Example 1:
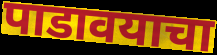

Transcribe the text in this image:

पाडावयाचा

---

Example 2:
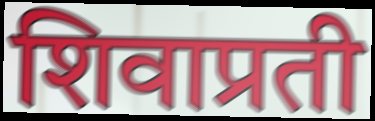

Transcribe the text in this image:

शिवाप्रती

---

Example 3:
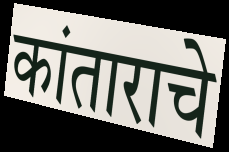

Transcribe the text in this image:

कांताराचे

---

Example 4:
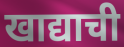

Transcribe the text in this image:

खाद्याची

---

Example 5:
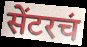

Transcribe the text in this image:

सेंटरचं